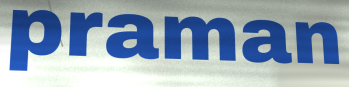
praman